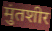
मुंतशीर